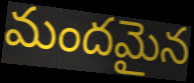
మందమైన